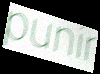
punir